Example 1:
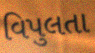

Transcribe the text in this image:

વિપુલતા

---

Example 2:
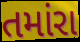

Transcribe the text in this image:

તમાંરા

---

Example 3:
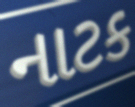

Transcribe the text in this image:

નાટક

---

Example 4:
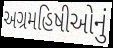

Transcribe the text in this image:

અગ્રમહિષીઓનું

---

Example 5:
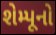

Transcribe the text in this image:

શેમ્પૂનો